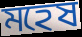
মহেষ